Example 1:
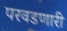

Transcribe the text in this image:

परवडणारी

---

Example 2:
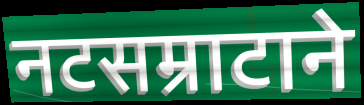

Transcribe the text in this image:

नटसम्राटाने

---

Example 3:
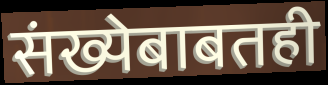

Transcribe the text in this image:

संख्येबाबतही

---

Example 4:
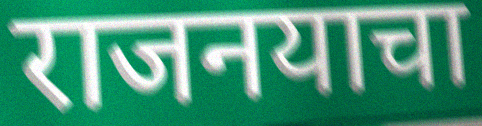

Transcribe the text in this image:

राजनयाचा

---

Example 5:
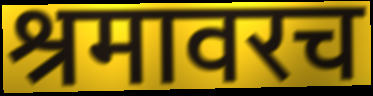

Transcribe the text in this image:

श्रमावरच